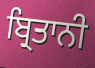
ਬ੍ਰਿਤਾਨੀ